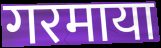
गरमाया